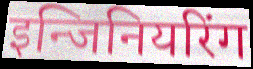
इन्जिनियरिंग